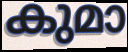
കുമാ